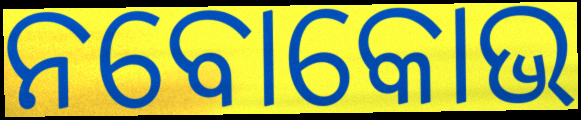
ନବୋକୋଭ